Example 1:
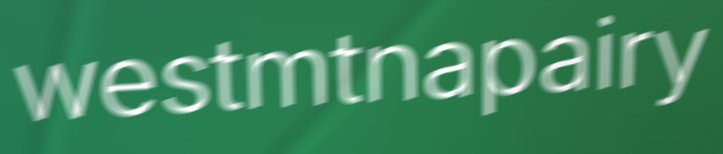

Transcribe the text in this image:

westmtnapairy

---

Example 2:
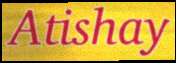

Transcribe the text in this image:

Atishay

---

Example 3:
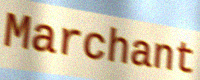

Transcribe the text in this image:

Marchant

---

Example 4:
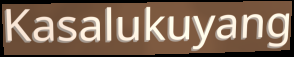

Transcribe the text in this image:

Kasalukuyang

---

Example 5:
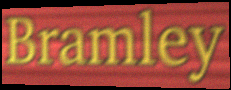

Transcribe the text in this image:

Bramley